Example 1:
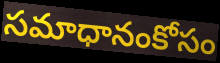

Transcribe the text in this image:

సమాధానంకోసం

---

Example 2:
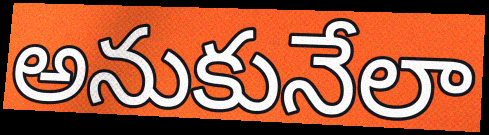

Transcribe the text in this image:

అనుకునేలా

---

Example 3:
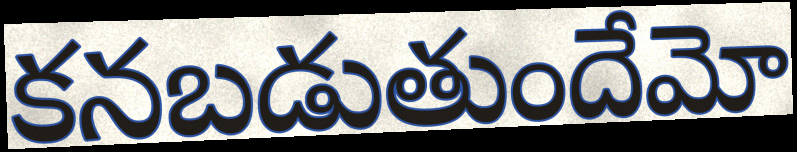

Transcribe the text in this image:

కనబడుతుందేమో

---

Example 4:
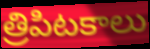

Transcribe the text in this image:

త్రిపిటకాలు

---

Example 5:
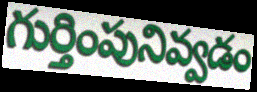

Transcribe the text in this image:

గుర్తింపునివ్వడం